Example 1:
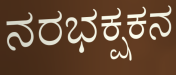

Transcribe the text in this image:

ನರಭಕ್ಷಕನ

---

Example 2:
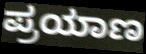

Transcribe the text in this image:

ಪ್ರಯಾಣ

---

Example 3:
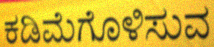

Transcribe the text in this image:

ಕಡಿಮೆಗೊಳಿಸುವ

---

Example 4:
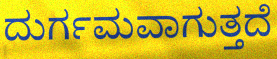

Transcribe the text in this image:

ದುರ್ಗಮವಾಗುತ್ತದೆ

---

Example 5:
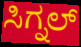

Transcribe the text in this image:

ಸಿಗ್ನಲ್